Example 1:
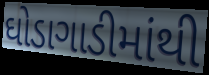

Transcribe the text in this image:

ઘોડાગાડીમાંથી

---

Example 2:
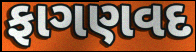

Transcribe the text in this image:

ફાગણવદ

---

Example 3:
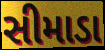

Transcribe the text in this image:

સીમાડા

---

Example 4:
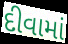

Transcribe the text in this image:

દીવામાં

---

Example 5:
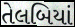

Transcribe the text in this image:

તેલબિયાં